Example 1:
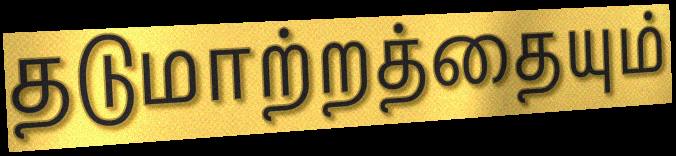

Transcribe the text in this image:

தடுமாற்றத்தையும்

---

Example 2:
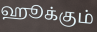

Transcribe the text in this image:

ஹூக்கும்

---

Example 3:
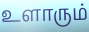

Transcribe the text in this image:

உளாரும்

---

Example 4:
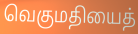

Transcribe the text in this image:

வெகுமதியைத்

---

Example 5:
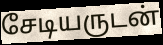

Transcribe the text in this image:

சேடியருடன்